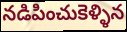
నడిపించుకెళ్ళిన